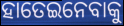
ହାତେଇନେବାକୁ